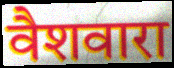
वैशवारा